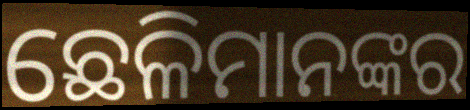
ଛେଳିମାନଙ୍କର